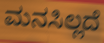
ಮನಸಿಲ್ಲದೆ